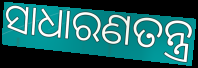
ସାଧାରଣତନ୍ତ୍ର